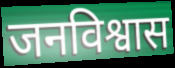
जनविश्वास